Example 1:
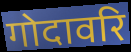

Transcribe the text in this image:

गोदावरि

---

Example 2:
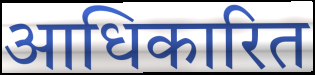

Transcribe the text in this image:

आधिकारित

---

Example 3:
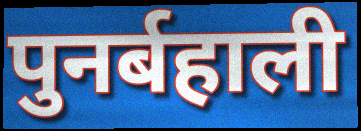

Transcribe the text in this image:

पुनर्बहाली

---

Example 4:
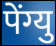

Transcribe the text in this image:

पेंग्यु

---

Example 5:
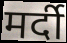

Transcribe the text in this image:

मर्दी